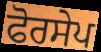
ਫੋਰਸੇਪ